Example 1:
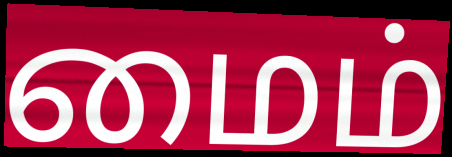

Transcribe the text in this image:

மைம்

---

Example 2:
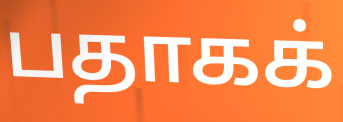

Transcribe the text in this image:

பதாகக்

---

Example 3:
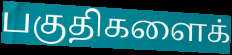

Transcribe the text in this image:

பகுதிகளைக்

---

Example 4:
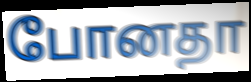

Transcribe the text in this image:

போனதா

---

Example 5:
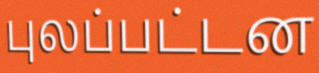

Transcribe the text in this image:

புலப்பட்டன